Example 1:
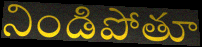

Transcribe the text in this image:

నిండిపోతూ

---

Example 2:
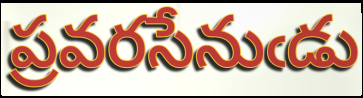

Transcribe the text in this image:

ప్రవరసేనుఁడు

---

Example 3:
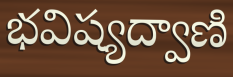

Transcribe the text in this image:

భవిష్యద్వాణి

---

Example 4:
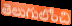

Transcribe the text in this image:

తెలుగులోంచి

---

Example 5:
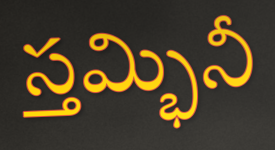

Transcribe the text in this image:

స్తమ్భినీ